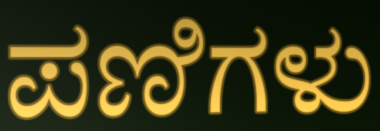
ಪಣಿಗಳು